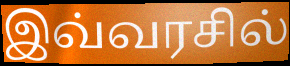
இவ்வரசில்